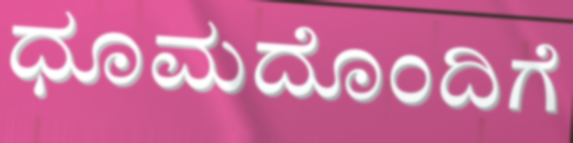
ಧೂಮದೊಂದಿಗೆ